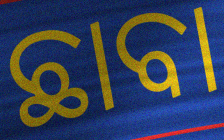
ଛାବା